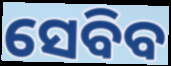
ସେବିବ